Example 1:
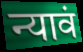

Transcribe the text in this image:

न्यावं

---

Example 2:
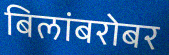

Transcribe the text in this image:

बिलांबरोबर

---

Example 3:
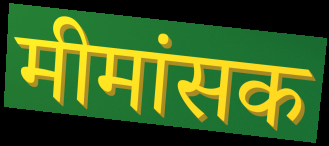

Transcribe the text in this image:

मीमांसक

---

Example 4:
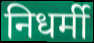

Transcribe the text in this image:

निधर्मी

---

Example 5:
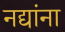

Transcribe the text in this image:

नद्यांना